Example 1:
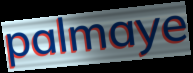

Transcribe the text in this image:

palmaye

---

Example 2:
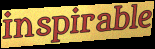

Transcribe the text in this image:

inspirable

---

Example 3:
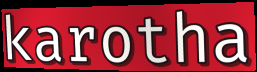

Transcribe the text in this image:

karotha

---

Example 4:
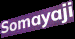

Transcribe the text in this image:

Somayaji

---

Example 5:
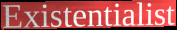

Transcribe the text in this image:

Existentialist